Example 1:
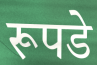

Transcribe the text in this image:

रूपडे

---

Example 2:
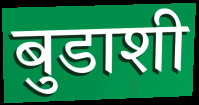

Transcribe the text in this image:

बुडाशी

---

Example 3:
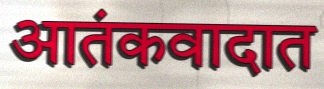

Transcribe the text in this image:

आतंकवादात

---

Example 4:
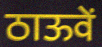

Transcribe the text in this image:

ठाऊवें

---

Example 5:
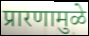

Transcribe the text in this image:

प्रारणामुळे